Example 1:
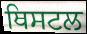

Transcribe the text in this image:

ਥਿਸਟਲ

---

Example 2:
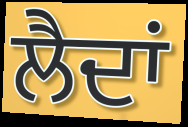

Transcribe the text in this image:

ਲੈਦਾਂ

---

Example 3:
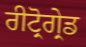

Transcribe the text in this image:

ਰੀਟ੍ਰੋਗ੍ਰੇਡ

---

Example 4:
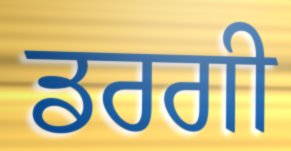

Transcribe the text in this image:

ਡਰਗੀ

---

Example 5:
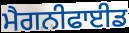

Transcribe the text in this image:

ਮੈਗਨੀਫਾਈਡ